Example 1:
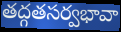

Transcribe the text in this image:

తద్గతసర్వభావా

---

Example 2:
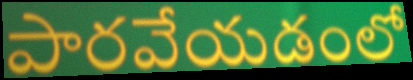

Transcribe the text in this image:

పారవేయడంలో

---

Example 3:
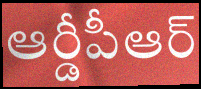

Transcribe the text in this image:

ఆర్డీపీఆర్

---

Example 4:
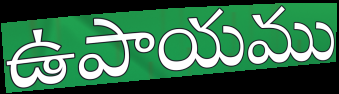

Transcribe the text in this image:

ఉపాయము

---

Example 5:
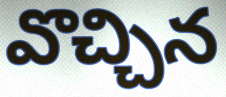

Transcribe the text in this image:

వొచ్చిన